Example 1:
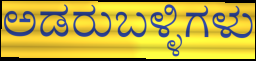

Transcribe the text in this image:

ಅಡರುಬಳ್ಳಿಗಳು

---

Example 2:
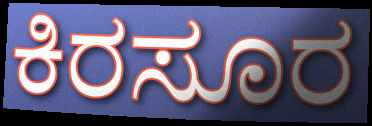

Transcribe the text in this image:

ಕಿರಸೂರ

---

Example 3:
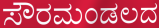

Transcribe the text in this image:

ಸೌರಮಂಡಲದ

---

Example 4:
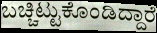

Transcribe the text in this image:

ಬಚ್ಚಿಟ್ಟುಕೊಂಡಿದ್ದಾರೆ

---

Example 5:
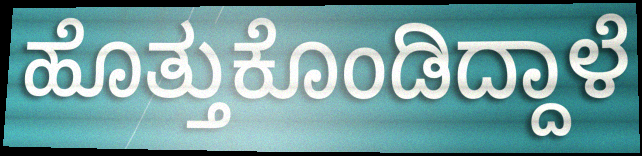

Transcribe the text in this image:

ಹೊತ್ತುಕೊಂಡಿದ್ದಾಳೆ